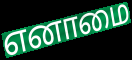
எனாமை